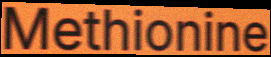
Methionine